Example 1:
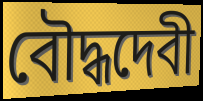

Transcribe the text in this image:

বৌদ্ধদেবী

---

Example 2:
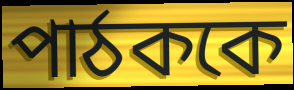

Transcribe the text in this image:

পাঠককে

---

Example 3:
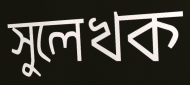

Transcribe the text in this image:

সুলেখক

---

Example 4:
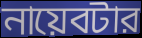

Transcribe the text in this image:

নায়েবটার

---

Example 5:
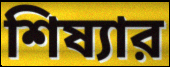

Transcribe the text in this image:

শিষ্যার